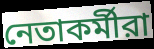
নেতাকর্মীরা